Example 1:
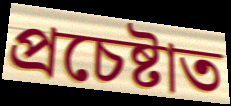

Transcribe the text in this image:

প্ৰচেষ্টাত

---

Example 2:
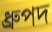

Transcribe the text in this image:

ধ্ৰুপদ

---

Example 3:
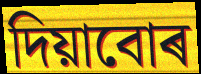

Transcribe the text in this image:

দিয়াবোৰ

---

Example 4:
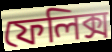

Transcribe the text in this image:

ফেলিক্স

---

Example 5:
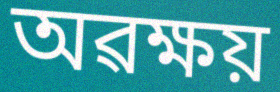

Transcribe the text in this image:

অৱক্ষয়